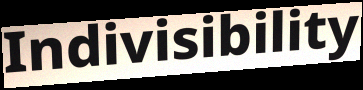
Indivisibility